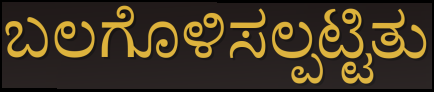
ಬಲಗೊಳಿಸಲ್ಪಟ್ಟಿತು